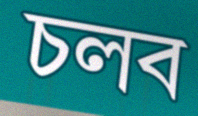
চলব